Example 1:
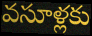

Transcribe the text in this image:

వసూళ్లకు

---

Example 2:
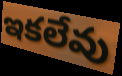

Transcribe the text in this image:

ఇకలేవు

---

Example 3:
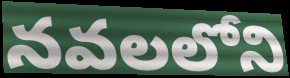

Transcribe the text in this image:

నవలలోని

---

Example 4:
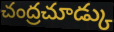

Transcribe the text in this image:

చంద్రచూడ్కు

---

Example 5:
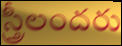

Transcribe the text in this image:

స్త్రీలందరు